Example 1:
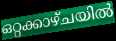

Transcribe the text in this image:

ഒറ്റക്കാഴ്ചയിൽ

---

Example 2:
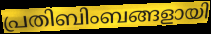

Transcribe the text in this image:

പ്രതിബിംബങ്ങളായി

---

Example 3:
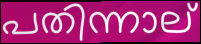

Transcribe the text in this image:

പതിന്നാല്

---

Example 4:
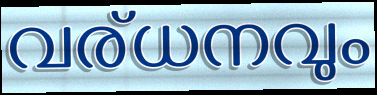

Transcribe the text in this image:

വര്ധനവും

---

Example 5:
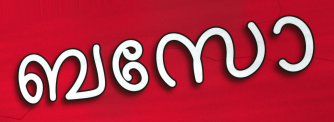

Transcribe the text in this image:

ബസോ